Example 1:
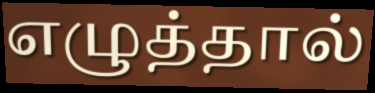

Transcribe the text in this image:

எழுத்தால்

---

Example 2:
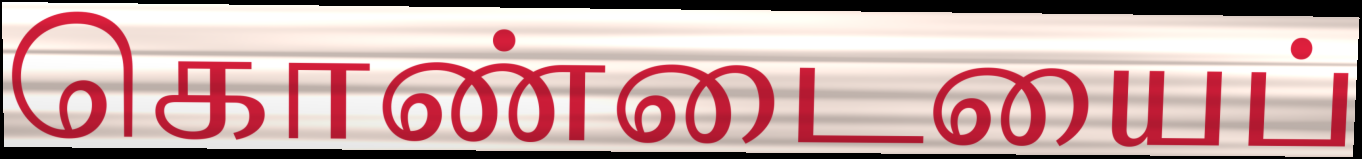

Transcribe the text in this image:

கொண்டையைப்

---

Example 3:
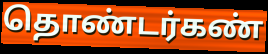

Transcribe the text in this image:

தொண்டர்கண்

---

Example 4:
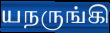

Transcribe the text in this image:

யநருங்கி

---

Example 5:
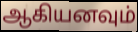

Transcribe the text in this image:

ஆகியனவும்